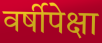
वर्षीपेक्षा